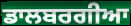
ਡਾਲਬਰਗੀਆ